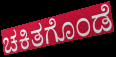
ಚಕಿತಗೊಂಡೆ